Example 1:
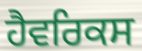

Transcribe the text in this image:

ਹੈਵਰਿਕਸ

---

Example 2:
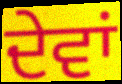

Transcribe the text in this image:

ਦੇਵਾਂ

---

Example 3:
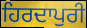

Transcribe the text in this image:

ਹਿਰਦਾਪੁਰੀ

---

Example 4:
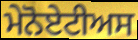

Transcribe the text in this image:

ਮੇਨੋਏਟੀਅਸ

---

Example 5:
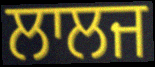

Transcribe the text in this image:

ਲਾਲਜ